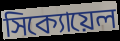
সিক্যোয়েল